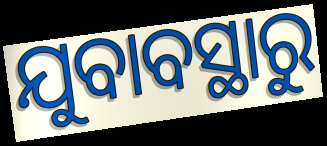
ଯୁବାବସ୍ଥାରୁ